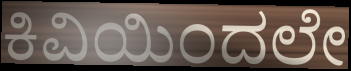
ಕಿವಿಯಿಂದಲೇ